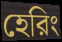
হেরিং